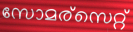
സോമര്സെറ്റ്